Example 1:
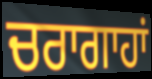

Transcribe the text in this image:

ਚਰਾਗਾਹਾਂ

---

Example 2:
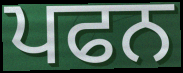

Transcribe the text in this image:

ਪਫਨ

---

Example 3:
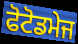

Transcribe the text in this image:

ਫੋਟੋਡਮੇਜ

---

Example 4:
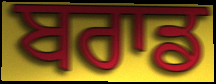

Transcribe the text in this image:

ਬਰਾਡ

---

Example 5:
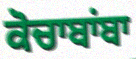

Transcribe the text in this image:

ਕੋਚਾਬਾਂਬਾ